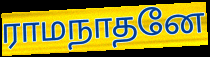
ராமநாதனே